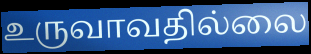
உருவாவதில்லை